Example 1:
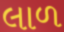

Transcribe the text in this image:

લાળ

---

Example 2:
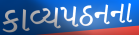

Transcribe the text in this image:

કાવ્યપઠનના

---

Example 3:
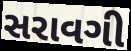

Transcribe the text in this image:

સરાવગી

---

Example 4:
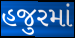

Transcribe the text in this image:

હજુરમાં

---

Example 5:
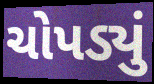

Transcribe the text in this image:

ચોપડ્યું